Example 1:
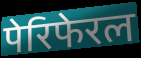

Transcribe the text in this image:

पेरिफेरल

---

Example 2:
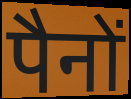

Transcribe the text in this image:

पैनों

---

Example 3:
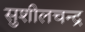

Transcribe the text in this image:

सुशीलचन्द्र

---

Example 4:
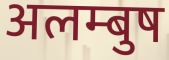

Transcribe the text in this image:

अलम्बुष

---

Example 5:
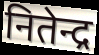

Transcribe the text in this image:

नितेन्द्र